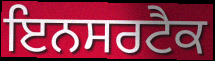
ਇਨਸਰਟੈਕ